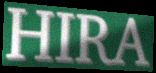
HIRA